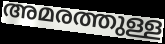
അമരത്തുള്ള